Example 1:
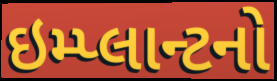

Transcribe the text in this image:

ઇમ્પ્લાન્ટનો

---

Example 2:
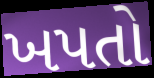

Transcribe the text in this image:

ખપતો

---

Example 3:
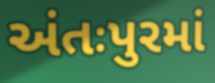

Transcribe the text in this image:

અંતઃપુરમાં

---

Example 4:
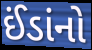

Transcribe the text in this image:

ઈંડાંનો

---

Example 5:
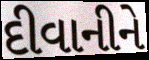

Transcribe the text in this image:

દીવાનીને